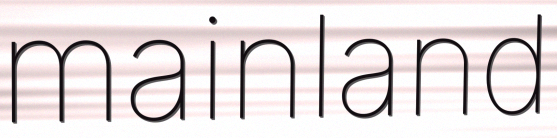
mainland